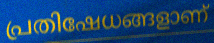
പ്രതിഷേധങ്ങളാണ്